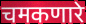
चमकणारे